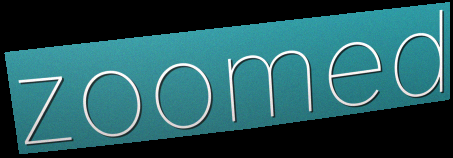
zoomed